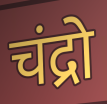
चंद्रो